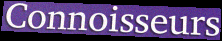
Connoisseurs